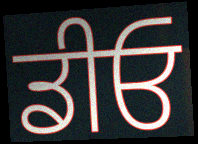
ਡੀਓ